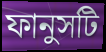
ফানুসটি